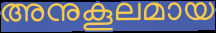
അനുകൂലമായ